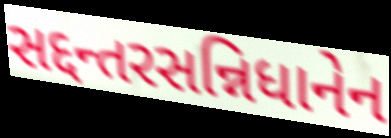
સદ્દન્તરસન્નિધાનેન